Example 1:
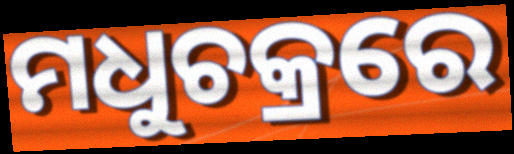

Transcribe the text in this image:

ମଧୁଚକ୍ରରେ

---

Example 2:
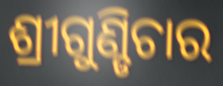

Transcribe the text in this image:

ଶ୍ରୀଗୁଣ୍ଡିଚାର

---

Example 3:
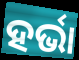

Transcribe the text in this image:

ହର୍ଭା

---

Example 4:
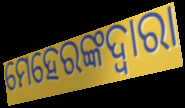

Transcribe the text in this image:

ମେହେରଙ୍କଦ୍ଵାରା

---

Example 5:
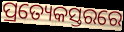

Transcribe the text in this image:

ପ୍ରତ୍ୟେକସ୍ତରରେ